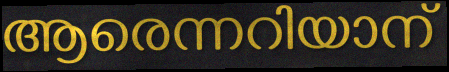
ആരെന്നറിയാന്